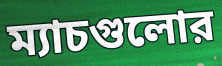
ম্যাচগুলোর